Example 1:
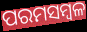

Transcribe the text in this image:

ପରମସମ୍ବଳ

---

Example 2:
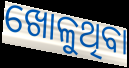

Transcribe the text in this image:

ଖୋଳୁଥିବା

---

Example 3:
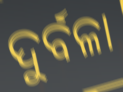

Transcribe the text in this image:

ଦୁର୍ବଳା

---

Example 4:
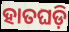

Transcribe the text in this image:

ହାତଘଡ଼ି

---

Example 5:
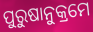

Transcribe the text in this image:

ପୁରୁଷାନୁକ୍ରମେ